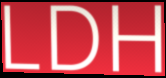
LDH